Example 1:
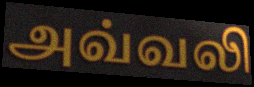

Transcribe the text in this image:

அவ்வலி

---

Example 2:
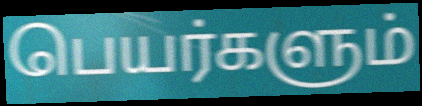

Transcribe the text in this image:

பெயர்களும்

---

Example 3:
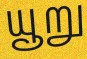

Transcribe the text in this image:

யூறு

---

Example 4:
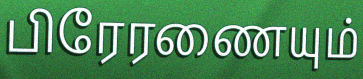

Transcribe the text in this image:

பிரேரணையும்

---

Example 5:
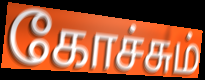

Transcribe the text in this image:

கோச்சும்